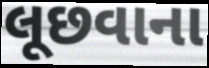
લૂછવાના